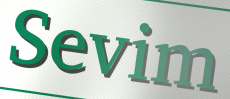
Sevim